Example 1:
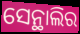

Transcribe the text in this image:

ସେନ୍ଥାଲିର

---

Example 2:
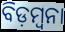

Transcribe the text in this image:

ବିଡ଼ମ୍ୱନା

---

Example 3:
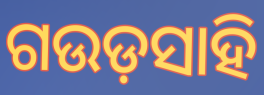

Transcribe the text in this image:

ଗଉଡ଼ସାହି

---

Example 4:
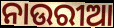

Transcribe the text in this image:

ନାଉରୀଆ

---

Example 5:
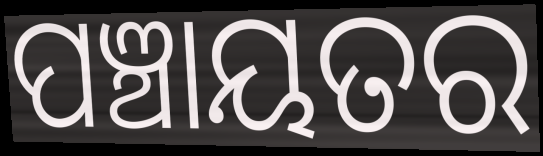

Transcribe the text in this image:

ପଞ୍ଚାୟତର